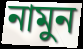
নামুন